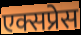
एक्सप्रेस